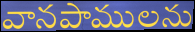
వానపాములను